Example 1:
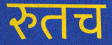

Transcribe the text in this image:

रुतच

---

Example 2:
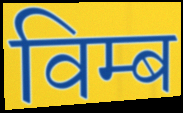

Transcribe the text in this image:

विम्ब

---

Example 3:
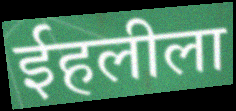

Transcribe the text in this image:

ईहलीला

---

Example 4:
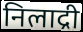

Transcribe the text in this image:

निलाद्री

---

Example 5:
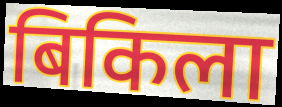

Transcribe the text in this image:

बिकिला